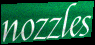
nozzles